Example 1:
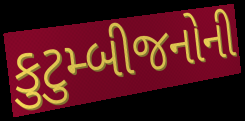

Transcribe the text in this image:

કુટુમ્બીજનોની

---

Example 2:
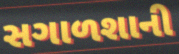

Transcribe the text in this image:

સગાળશાની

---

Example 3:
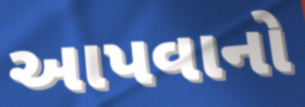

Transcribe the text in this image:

આપવાનો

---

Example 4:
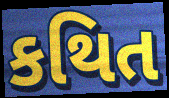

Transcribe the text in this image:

કથિત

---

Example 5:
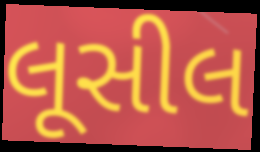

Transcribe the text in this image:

લૂસીલ